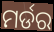
ମର୍ଡର